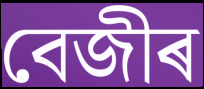
বেজীৰ